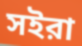
সইরা